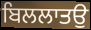
ਬਿਲਲਾਤਉ